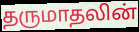
தருமாதலின்